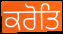
ਕਰੋਤਿ